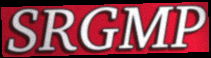
SRGMP